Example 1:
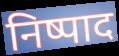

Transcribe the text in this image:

निष्पाद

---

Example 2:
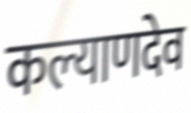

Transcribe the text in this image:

कल्याणदेव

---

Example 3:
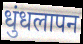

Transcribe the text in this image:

धुंधलापन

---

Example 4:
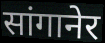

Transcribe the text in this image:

सांगानेर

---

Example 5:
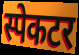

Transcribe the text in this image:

स्पेकटर